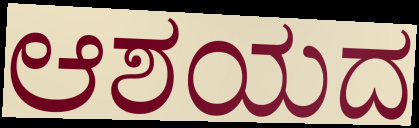
ಆಶಯದ